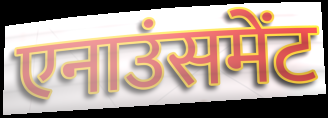
एनाउंसमेंट